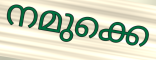
നമുക്കെ